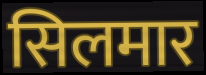
सिलमार